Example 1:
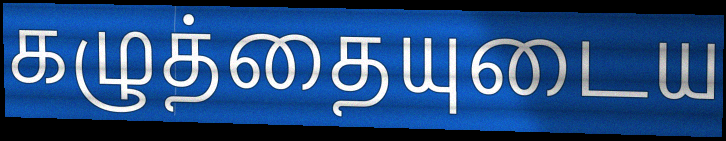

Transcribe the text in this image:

கழுத்தையுடைய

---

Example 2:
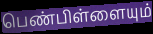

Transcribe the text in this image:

பெண்பிள்ளையும்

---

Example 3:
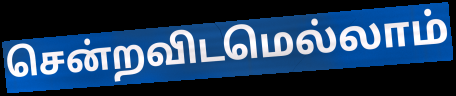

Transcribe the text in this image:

சென்றவிடமெல்லாம்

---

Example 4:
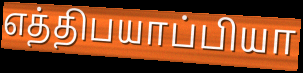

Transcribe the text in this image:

எத்திபயாப்பியா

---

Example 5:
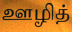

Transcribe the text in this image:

ஊழித்